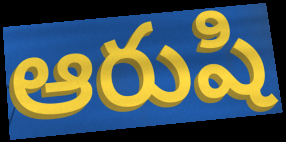
ఆరుషి